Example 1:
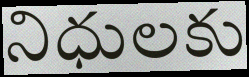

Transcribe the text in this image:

నిధులకు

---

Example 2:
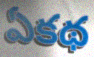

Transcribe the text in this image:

ఏకథ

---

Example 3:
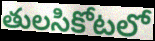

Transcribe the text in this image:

తులసికోటలో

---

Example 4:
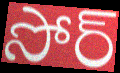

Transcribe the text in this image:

సోర్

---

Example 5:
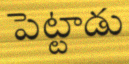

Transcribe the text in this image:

పెట్టాడు